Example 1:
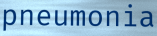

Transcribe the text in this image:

pneumonia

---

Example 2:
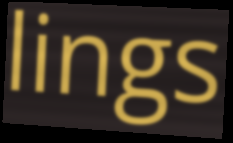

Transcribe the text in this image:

lings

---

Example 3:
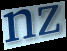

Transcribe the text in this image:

nz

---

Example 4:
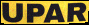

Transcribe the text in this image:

UPAR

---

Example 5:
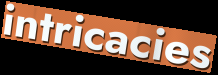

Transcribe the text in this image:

intricacies